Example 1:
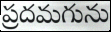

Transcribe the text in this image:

ప్రదమగును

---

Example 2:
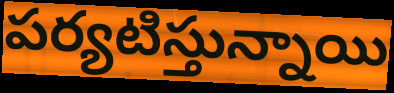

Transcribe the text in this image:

పర్యటిస్తున్నాయి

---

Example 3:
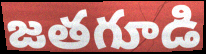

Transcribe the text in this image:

జతగూడి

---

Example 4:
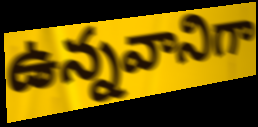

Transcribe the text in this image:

ఉన్నవానిగా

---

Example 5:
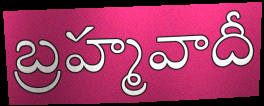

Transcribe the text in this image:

బ్రహ్మవాదీ